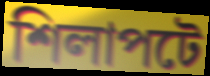
শিলাপটে